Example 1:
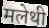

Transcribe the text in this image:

मलेथी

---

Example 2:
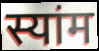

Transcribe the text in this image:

स्यांम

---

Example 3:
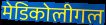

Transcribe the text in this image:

मेडिकोलीगल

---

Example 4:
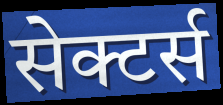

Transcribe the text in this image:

सेक्‍टर्स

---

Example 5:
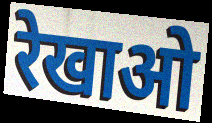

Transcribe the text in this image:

रेखाओ